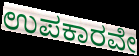
ಉಪಕಾರವೇ